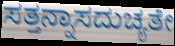
ಸತ್ತನ್ನಾಸದುಚ್ಯತೇ